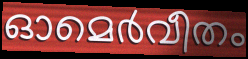
ഓമെർവീതം